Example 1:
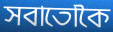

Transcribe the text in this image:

সবাতোকৈ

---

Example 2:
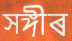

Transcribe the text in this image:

সঙ্গীৰ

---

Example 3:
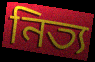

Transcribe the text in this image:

নিত্য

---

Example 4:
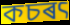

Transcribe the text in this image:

কচৰৎ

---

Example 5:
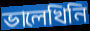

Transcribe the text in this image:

ভালেখিনি